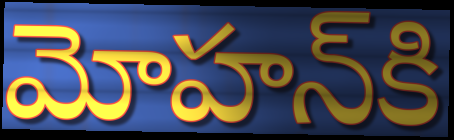
మోహన్‌కి